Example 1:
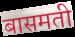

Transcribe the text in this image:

बासमती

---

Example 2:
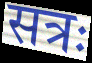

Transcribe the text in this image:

सत्रः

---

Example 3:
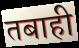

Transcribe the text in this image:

तबाही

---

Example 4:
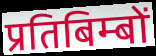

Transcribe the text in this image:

प्रतिबिम्बों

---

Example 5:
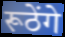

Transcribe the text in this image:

रूठेंगे